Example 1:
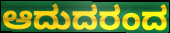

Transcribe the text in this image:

ಆದುದರಂದ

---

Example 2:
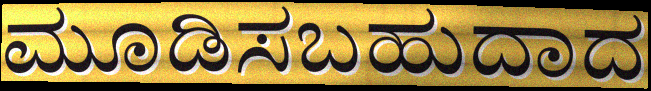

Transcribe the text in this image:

ಮೂಡಿಸಬಹುದಾದ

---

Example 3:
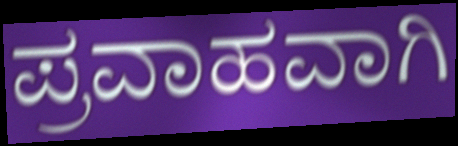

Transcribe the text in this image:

ಪ್ರವಾಹವಾಗಿ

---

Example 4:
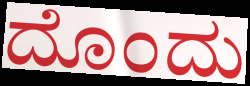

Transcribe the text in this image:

ದೊಂದು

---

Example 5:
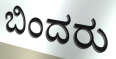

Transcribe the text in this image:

ಬಿಂದರು